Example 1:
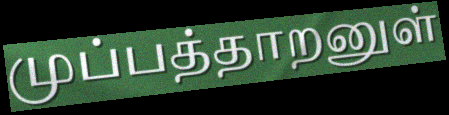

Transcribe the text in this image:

முப்பத்தாறனுள்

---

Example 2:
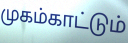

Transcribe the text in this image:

முகம்காட்டும்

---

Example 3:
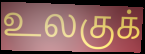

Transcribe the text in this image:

உலகுக்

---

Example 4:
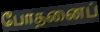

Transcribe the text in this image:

போதனைப்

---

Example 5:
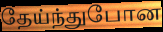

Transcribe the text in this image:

தேய்ந்துபோன